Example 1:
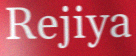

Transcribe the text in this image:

Rejiya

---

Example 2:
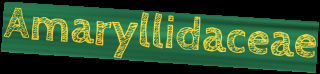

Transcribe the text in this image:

Amaryllidaceae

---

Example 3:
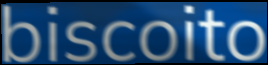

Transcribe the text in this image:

biscoito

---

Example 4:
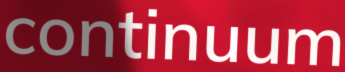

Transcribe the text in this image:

continuum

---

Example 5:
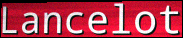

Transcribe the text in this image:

Lancelot